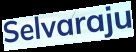
Selvaraju